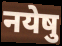
नयेषु